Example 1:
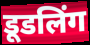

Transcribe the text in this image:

डूडलिंग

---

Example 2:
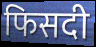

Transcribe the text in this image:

फिसदी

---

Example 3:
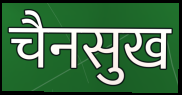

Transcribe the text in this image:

चैनसुख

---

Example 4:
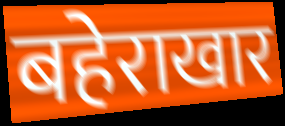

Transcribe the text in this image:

बहेराखार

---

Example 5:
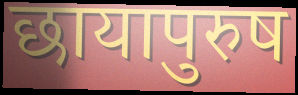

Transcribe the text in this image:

छायापुरुष